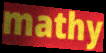
mathy